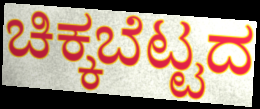
ಚಿಕ್ಕಬೆಟ್ಟದ